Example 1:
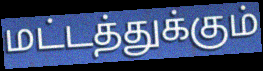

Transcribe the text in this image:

மட்டத்துக்கும்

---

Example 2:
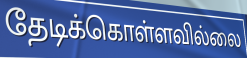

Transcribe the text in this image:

தேடிக்கொள்ளவில்லை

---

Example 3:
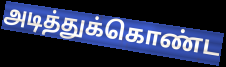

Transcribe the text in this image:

அடித்துக்கொண்ட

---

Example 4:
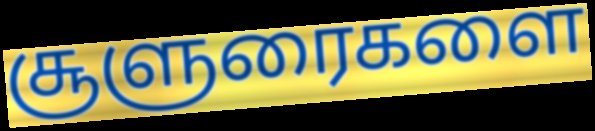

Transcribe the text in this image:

சூளுரைகளை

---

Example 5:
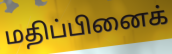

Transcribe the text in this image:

மதிப்பினைக்